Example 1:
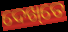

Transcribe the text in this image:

ଦେଖ୍‌ତେ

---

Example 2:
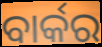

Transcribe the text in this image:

ବାର୍କର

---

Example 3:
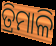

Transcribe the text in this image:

ତ୍ରିମାଳି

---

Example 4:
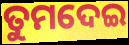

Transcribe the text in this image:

ତୁମଦେଇ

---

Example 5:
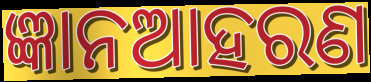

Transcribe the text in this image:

ଜ୍ଞାନଆହରଣ